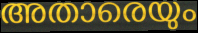
അതാരെയും